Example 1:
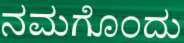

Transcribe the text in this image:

ನಮಗೊಂದು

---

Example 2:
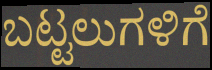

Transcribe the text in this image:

ಬಟ್ಟಲುಗಳಿಗೆ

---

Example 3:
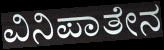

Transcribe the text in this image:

ವಿನಿಪಾತೇನ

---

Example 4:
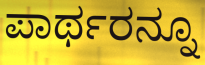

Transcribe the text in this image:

ಪಾರ್ಥರನ್ನೂ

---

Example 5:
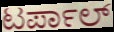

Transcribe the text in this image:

ಟರ್ಪಾಲ್